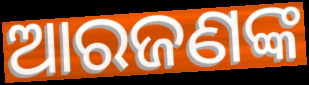
ଆରଜଣଙ୍କ